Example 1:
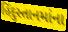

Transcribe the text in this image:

હિંદુસ્તાનમાંના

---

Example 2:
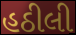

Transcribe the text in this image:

હઠીલી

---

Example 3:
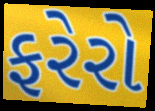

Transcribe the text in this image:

ફરેરો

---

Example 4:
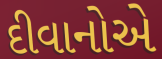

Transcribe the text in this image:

દીવાનોએ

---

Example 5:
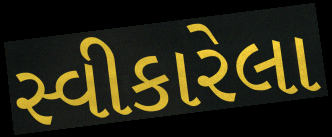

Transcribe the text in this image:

સ્વીકારેલા